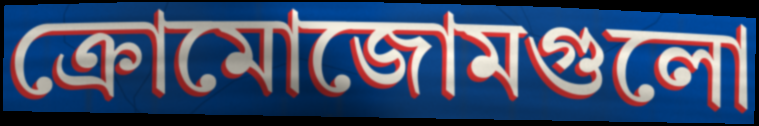
ক্রোমোজোমগুলো